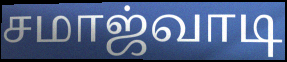
சமாஜ்வாடி